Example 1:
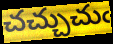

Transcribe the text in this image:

చచ్చుచుఁ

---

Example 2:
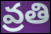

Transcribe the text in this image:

వ్రతి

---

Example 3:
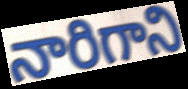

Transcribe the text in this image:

నారిగాని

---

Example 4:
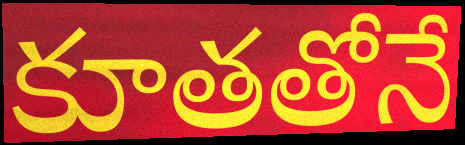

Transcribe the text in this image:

కూతతోనే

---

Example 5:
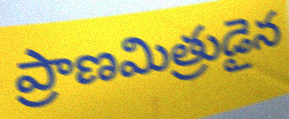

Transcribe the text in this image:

ప్రాణమిత్రుడైన